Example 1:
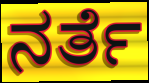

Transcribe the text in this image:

ನರ್ತೆ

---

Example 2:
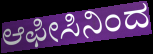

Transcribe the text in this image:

ಆಫೀಸಿನಿಂದ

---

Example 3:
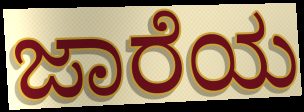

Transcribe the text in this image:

ಜಾರೆಯ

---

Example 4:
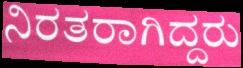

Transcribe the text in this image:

ನಿರತರಾಗಿದ್ದರು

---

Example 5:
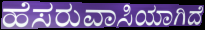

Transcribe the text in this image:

ಹೆಸರುವಾಸಿಯಾಗಿದೆ